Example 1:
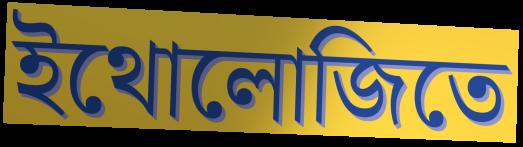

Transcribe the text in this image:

ইথোলোজিতে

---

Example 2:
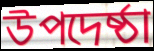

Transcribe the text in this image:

উপদেষ্ঠা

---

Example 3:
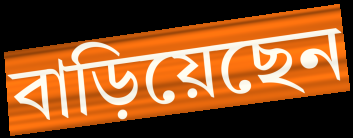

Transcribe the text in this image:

বাড়িয়েছেন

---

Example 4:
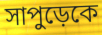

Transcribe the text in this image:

সাপুড়েকে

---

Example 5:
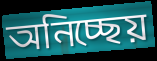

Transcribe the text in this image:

অনিচ্ছেয়